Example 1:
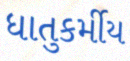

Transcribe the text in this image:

ધાતુકર્મીય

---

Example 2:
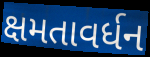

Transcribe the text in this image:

ક્ષમતાવર્ધન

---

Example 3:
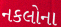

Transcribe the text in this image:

નકલોના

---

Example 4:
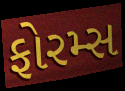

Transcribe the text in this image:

ફોરમ્સ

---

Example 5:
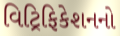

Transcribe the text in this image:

વિટ્રિફિકેશનનો